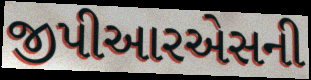
જીપીઆરએસની